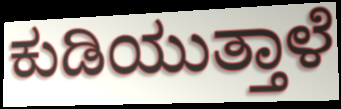
ಕುಡಿಯುತ್ತಾಳೆ